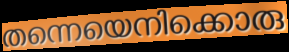
തന്നെയെനിക്കൊരു